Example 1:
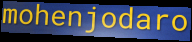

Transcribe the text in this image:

mohenjodaro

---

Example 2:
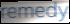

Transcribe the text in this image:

remedy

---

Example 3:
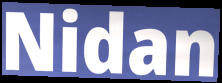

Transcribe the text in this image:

Nidan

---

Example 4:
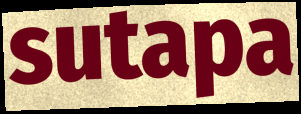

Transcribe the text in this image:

sutapa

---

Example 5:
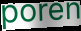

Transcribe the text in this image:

poren